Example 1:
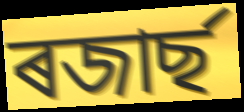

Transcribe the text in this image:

ৰজাৰ্ছ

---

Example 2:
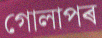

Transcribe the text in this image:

গোলাপৰ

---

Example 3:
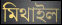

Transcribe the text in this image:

মিথাইল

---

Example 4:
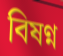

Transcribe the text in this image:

বিষণ্ন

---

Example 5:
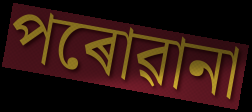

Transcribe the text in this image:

পৰোৱানা